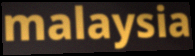
malaysia